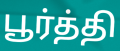
பூர்த்தி